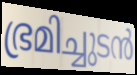
ഭ്രമിച്ചുടൻ